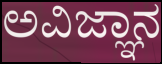
ಅವಿಜ್ಞಾನ